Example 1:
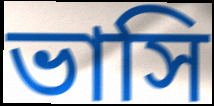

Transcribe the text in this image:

ভাসি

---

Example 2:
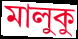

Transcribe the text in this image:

মালুকু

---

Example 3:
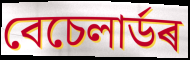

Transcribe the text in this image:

বেচেলাৰ্ডৰ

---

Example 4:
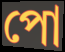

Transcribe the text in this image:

পো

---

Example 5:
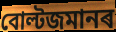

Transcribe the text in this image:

বোল্টজমানৰ